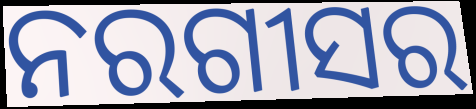
ନରଗୀସର